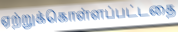
ஏற்றுக்கொள்ளப்பட்டதை